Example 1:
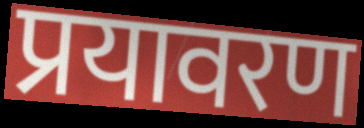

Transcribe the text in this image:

प्रयावरण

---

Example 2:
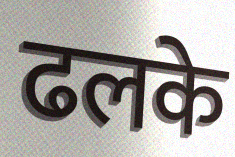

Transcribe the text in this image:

ढलके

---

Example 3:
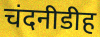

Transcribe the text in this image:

चंदनीडीह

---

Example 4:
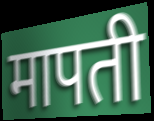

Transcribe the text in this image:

मापती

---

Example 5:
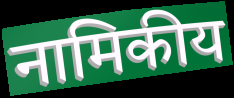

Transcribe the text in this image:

नामिकीय